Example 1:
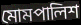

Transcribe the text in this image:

মোমপালিশ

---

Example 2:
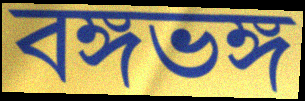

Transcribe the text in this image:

বঙ্গভঙ্গ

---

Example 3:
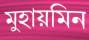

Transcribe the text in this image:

মুহায়মিন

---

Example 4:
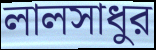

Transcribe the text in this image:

লালসাধুর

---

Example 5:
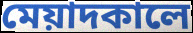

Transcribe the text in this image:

মেয়াদকালে